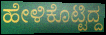
ಹೇಳಿಕೊಟ್ಟಿದ್ದ